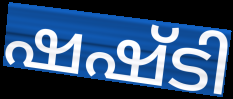
ഷഷ്ടി